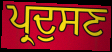
ਪ੍ਰਦੁਸਣ